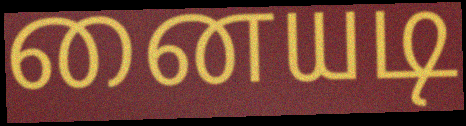
னையடி